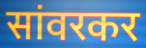
सांवरकर